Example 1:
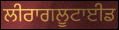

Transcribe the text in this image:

ਲੀਰਾਗਲੂਟਾਈਡ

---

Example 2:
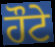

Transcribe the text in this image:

ਹੌਟੇ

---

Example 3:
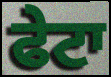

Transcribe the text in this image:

ਫੇਟਾ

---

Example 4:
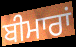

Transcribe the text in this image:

ਬੀਮਾਰਾਂ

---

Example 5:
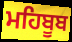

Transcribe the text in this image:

ਮਹਿਬੂਬ